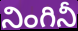
నింగినీ